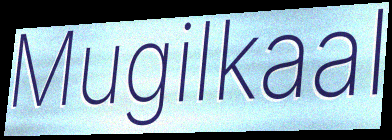
Mugilkaal